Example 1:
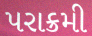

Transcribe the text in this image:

પરાક્રમી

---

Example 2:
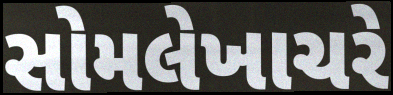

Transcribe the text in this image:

સોમલેખાચરે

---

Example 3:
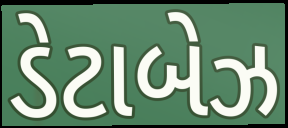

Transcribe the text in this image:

ડેટાબેઝ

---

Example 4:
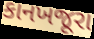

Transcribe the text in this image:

કાનખજૂરા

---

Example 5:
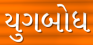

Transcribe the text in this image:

યુગબોધ